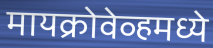
मायक्रोवेव्हमध्ये